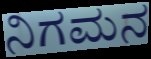
ನಿಗಮನ